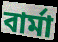
বাৰ্মা